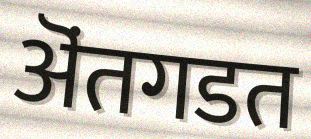
ऄंतगडत